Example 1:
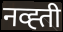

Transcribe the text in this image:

नव्ह्ती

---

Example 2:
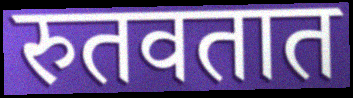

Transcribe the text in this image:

रुतवतात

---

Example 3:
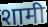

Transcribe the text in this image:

शामी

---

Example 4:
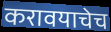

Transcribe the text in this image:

करावयाचेच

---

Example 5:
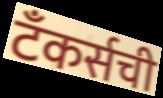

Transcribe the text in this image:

टँकर्सची